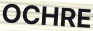
OCHRE